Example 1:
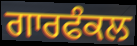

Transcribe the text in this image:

ਗਾਰਫੰਕਲ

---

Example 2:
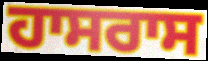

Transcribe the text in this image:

ਹਾਸਰਾਸ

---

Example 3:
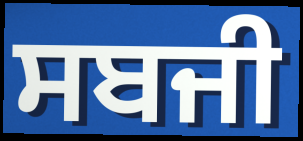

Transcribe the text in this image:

ਸਬਜੀ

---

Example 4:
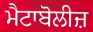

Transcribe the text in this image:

ਮੈਟਾਬੋਲੀਜ਼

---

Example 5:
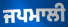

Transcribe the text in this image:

ਜਪਮਾਲੀ